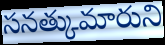
సనత్కుమారుని